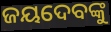
ଜୟଦେବଙ୍କୁ